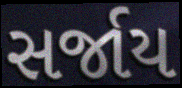
સર્જાય